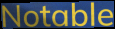
Notable